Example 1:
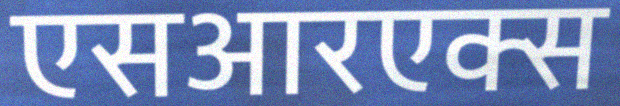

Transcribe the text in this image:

एसआरएक्स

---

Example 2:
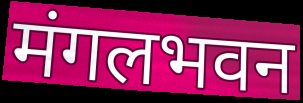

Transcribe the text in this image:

मंगलभवन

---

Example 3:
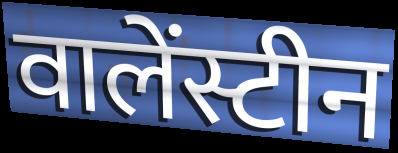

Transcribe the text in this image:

वालेंस्टीन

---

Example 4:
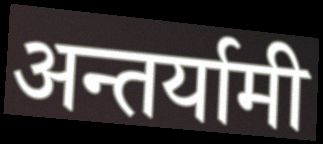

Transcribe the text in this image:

अन्तर्यामी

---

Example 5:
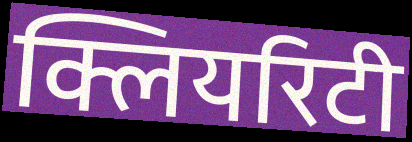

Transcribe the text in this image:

क्लियरिटी